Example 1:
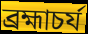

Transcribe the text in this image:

ব্ৰহ্মাচৰ্য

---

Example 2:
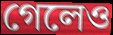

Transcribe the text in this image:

গেলেও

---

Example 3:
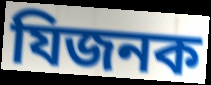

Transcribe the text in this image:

যিজনক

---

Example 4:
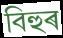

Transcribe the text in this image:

বিহুৰ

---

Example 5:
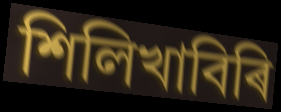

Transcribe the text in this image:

শিলিখাবিৰি